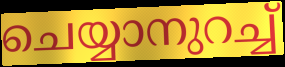
ചെയ്യാനുറച്ച്